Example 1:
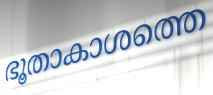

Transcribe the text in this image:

ഭൂതാകാശത്തെ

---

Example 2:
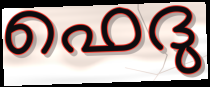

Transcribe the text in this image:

ഫെദു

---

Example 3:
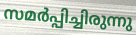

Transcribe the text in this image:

സമർപ്പിച്ചിരുന്നു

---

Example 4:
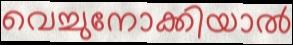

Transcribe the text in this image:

വെച്ചുനോക്കിയാൽ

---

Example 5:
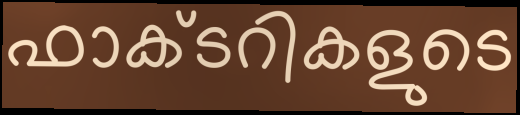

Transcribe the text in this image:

ഫാക്ടറികളുടെ